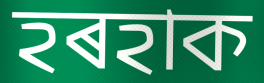
হৰহাক